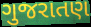
ગુજરાતણ